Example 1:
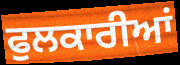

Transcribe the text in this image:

ਫੁਲਕਾਰੀਆਂ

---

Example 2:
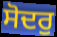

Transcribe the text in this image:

ਸੋਦਰੁ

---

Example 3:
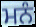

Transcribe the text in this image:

ਮਨੰ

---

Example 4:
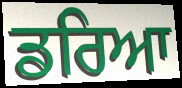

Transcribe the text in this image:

ਡਰਿਆ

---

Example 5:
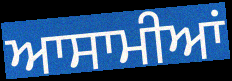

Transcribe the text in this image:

ਆਸਾਮੀਆਂ